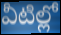
వీటిల్లో